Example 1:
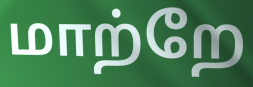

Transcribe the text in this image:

மாற்றே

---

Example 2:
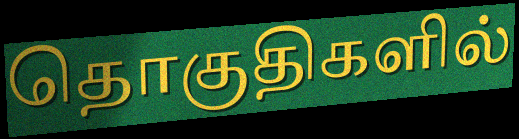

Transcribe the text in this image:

தொகுதிகளில்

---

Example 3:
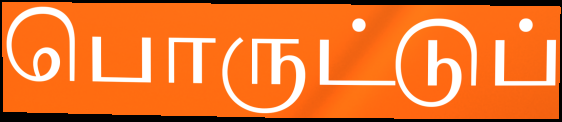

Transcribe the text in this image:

பொருட்டுப்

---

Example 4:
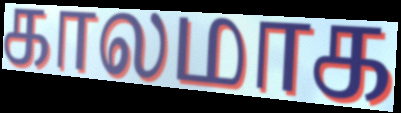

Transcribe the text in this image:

காலமாக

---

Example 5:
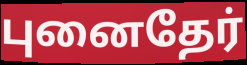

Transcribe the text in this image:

புனைதேர்